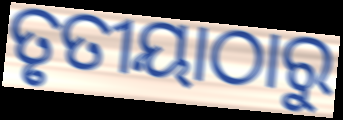
ତୃତୀୟାଠାରୁ